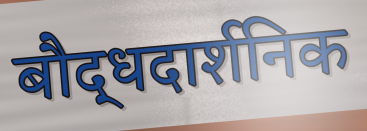
बौद्धदार्शनिक